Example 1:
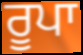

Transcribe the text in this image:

ਰੂਪਾ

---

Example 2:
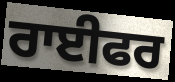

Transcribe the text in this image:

ਰਾਈਫਰ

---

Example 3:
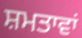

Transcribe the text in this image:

ਸ਼ਮਤਾਵਾਂ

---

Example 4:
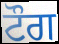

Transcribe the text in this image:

ਟੌਗ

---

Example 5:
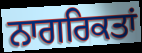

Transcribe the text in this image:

ਨਾਗਰਿਕਤਾਂ